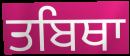
ਤਬਿਥਾ